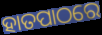
ହାତପାଠରେ